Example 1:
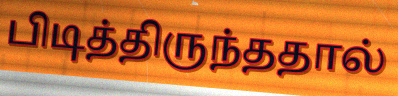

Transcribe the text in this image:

பிடித்திருந்ததால்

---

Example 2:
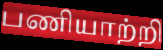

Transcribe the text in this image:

பணியாற்றி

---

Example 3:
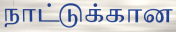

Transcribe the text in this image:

நாட்டுக்கான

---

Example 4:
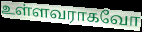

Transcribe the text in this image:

உள்ளவராகவோ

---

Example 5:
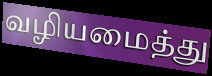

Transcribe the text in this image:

வழியமைத்து